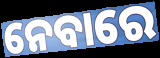
ନେବାରେ